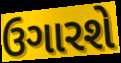
ઉગારશે